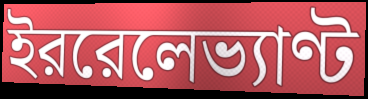
ইররেলেভ্যাণ্ট